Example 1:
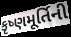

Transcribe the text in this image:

કૃષ્ણમૂર્તિની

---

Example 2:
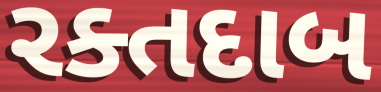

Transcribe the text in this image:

રક્તદાબ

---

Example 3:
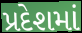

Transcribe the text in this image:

પ્રદેશમાં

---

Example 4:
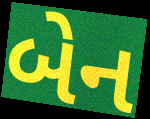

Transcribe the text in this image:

બેન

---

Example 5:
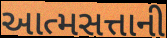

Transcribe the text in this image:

આત્મસત્તાની